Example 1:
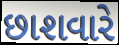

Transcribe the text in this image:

છાશવારે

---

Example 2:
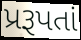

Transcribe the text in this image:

પ્રરૂપતાં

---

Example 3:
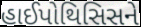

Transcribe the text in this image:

હાઈપોથિસિસને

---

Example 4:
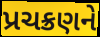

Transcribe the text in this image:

પ્રચક્રણને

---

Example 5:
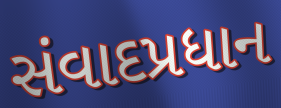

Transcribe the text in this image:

સંવાદપ્રધાન